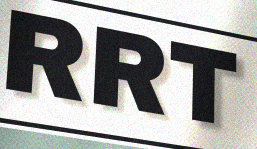
RRT